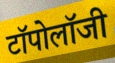
टॉपोलॉजी